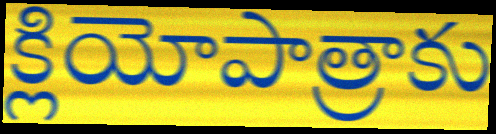
క్లియోపాత్రాకు